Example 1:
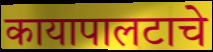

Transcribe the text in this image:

कायापालटाचे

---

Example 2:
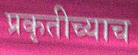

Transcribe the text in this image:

प्रकृतीच्याच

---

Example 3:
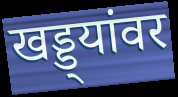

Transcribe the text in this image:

खड्ड्यांवर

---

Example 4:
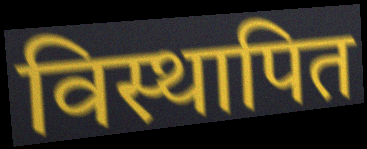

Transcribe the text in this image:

विस्थापित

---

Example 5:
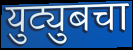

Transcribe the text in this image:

युट्युबचा